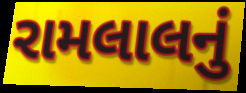
રામલાલનું